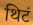
थिटं